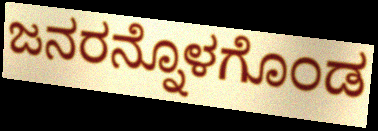
ಜನರನ್ನೊಳಗೊಂಡ